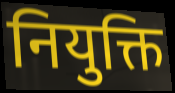
नियुक्ति